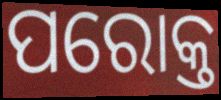
ପରୋକ୍ତ